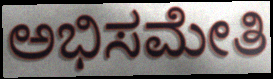
ಅಭಿಸಮೇತಿ